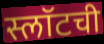
स्लॉटची